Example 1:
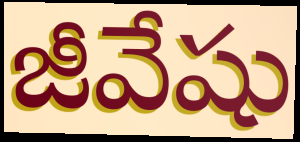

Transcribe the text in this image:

జీవేషు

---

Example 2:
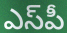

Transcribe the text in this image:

ఎస్‌పీ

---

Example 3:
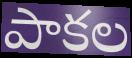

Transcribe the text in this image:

పాకల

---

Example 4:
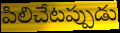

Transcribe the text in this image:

పిలిచేటప్పుడు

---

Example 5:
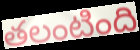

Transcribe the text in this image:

తలంటింది